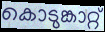
കൊടുങ്കാറ്റ്